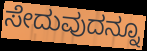
ಸೇದುವುದನ್ನೂ